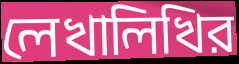
লেখালিখির